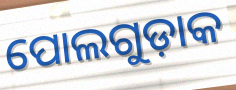
ପୋଲଗୁଡ଼ାକ